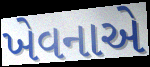
ખેવનાએ